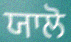
ਯਾਲੋ